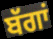
ਬੱਗਾਂ